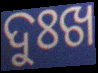
ଦୁଃଖ